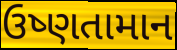
ઉષ્ણતામાન